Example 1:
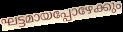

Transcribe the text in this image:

ഘട്ടമായപ്പോഴേക്കും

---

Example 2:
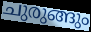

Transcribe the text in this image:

ചുരുങ്ങും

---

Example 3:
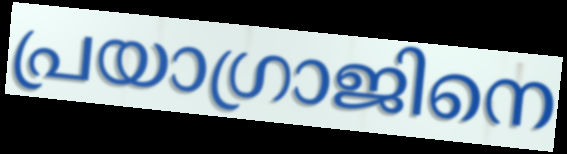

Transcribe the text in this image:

പ്രയാഗ്രാജിനെ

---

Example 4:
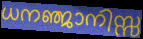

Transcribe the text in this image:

ധനഞ്ജാനിസ്സ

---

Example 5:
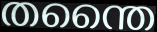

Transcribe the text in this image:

തന്തൈ